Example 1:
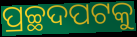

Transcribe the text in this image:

ପ୍ରଚ୍ଛଦପଟକୁ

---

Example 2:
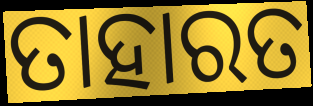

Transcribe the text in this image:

ତାହାରତ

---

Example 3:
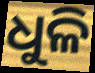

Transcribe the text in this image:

ଧୁଳି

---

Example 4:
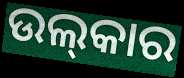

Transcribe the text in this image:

ଉଲ୍‍କାର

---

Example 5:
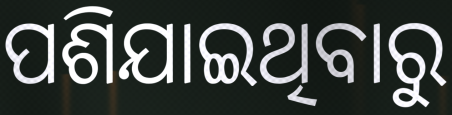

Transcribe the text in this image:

ପଶିଯାଇଥିବାରୁ